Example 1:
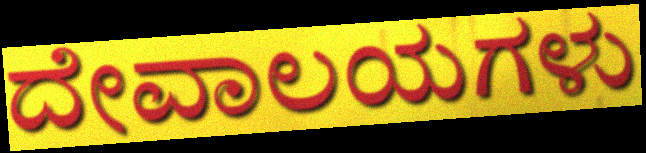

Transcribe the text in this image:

ದೇವಾಲಯಗಳು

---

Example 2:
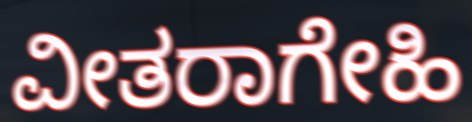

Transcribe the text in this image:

ವೀತರಾಗೇಹಿ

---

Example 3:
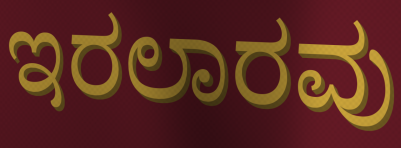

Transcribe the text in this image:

ಇರಲಾರವು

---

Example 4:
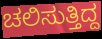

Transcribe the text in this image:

ಚಲಿಸುತ್ತಿದ್ದ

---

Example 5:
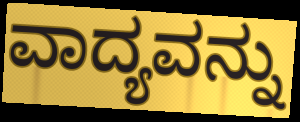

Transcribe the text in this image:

ವಾದ್ಯವನ್ನು